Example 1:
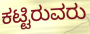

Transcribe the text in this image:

ಕಟ್ಟಿರುವರು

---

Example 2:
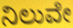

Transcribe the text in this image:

ನಿಲುವೇ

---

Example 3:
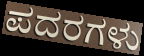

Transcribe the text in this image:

ಪದರಗಳು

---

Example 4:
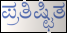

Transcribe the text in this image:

ಪ್ರತಿಷ್ಟಿತ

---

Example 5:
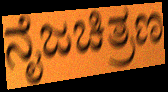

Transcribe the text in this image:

ನೈಜಚಿತ್ರಣ